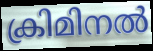
ക്രിമിനൽ